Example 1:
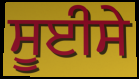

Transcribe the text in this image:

ਸੂਈਸੇ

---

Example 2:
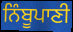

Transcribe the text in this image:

ਨਿੰਬੂਪਾਣੀ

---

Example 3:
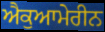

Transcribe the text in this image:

ਐਕੁਆਮੇਰੀਨ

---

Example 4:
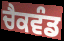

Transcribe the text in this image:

ਚੈਕਵੰਡ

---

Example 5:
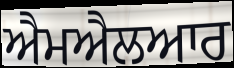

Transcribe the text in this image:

ਐਮਐਲਆਰ